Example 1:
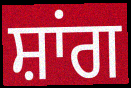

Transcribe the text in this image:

ਸ਼ਾਂਗ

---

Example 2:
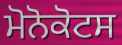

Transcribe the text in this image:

ਮੋਨੋਕੋਟਸ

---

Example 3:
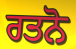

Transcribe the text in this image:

ਰਤਨੋ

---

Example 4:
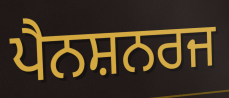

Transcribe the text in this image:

ਪੈਨਸ਼ਨਰਜ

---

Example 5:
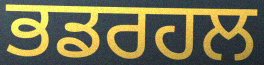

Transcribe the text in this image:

ਭਡਰਹਲ